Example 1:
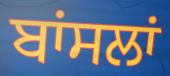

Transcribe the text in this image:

ਬਾਂਸਲਾਂ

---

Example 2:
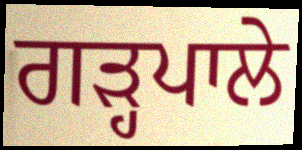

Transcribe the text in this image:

ਗੜ੍ਹਪਾਲੇ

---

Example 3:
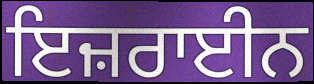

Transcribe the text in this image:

ਇਜ਼ਰਾਈਨ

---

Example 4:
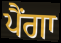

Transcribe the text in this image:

ਪੈਂਗਾ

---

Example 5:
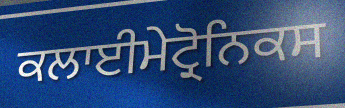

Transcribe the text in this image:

ਕਲਾਈਮੇਟ੍ਰੋਨਿਕਸ